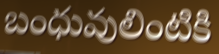
బంధువులింటికి